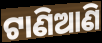
ଟାଣିଆଣି